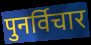
पुनर्विचार